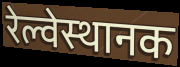
रेल्वेस्थानक